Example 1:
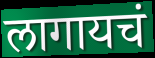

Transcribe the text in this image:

लागायचं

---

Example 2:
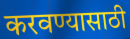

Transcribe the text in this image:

करवण्यासाठी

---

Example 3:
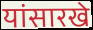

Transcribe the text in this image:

यांसारखे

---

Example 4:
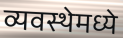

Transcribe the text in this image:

व्यवस्थेमध्ये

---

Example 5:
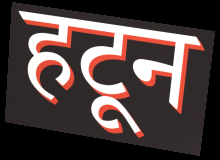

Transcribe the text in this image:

हटून